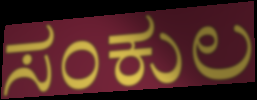
ಸಂಕುಲ